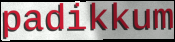
padikkum